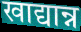
खाद्यान्न